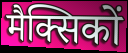
मैक्सिकों